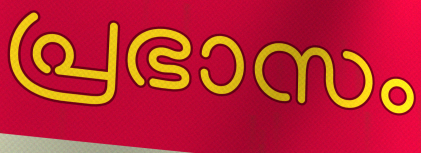
പ്രഭാസം